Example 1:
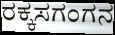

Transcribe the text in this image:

ರಕ್ಕಸಗಂಗನ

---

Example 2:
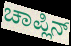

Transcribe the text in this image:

ಚಾಪ್ಲಿನ್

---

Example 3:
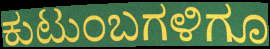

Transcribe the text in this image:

ಕುಟುಂಬಗಳಿಗೂ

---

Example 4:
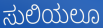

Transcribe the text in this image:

ಸುಲಿಯಲೂ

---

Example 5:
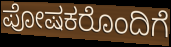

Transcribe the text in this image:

ಪೋಷಕರೊಂದಿಗೆ